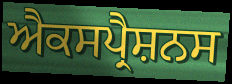
ਐਕਸਪ੍ਰੈਸ਼ਨਸ